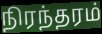
நிரந்தரம்